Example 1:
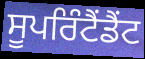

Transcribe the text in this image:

ਸੂਪਰਿੰਟੈਂਡੈਂਟ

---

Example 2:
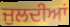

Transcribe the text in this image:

ਜੁਲਦੀਆਂ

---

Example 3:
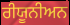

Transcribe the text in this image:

ਰੀਯੂਨੀਅਨ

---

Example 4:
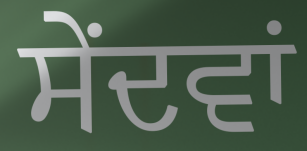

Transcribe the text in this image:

ਸੇਂਦਵਾਂ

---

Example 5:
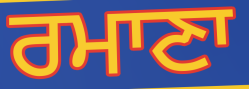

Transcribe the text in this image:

ਰਮਾਣਾ